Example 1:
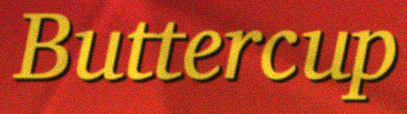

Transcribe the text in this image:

Buttercup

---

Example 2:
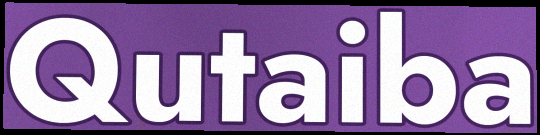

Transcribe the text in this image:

Qutaiba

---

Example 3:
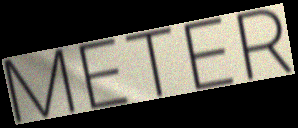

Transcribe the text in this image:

METER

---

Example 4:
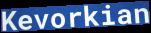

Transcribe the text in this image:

Kevorkian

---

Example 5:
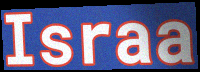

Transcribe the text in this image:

Israa